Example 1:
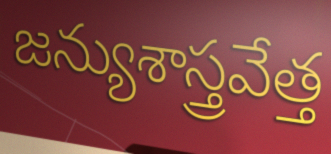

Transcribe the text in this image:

జన్యుశాస్త్రవేత్త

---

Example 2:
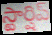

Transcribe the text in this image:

స్టార్షిప్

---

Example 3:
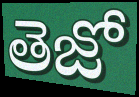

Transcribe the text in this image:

తెజో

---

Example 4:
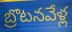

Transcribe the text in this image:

బ్రొటనవేళ్ల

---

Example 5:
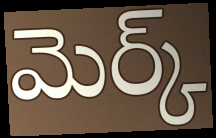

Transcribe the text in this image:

మెర్క్